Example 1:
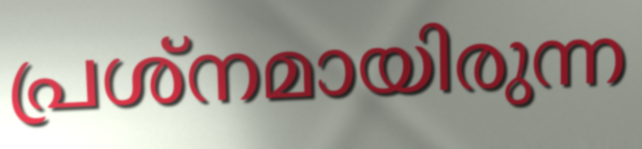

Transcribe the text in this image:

പ്രശ്നമായിരുന്ന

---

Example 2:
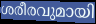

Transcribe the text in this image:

ശരീരവുമായി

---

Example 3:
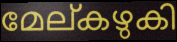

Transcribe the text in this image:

മേല്കഴുകി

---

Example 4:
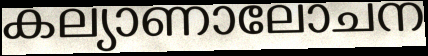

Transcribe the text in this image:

കല്യാണാലോചന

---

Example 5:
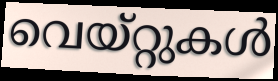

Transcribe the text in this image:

വെയ്റ്റുകൾ